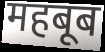
महबूब